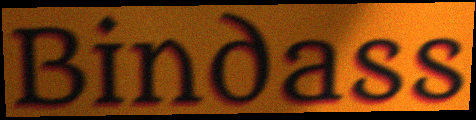
Bindass